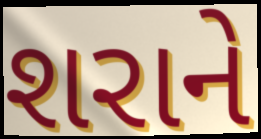
શરાને